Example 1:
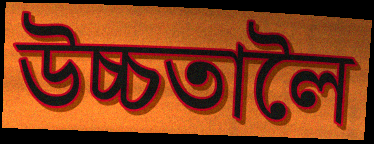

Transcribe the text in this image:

উচ্চতালৈ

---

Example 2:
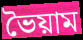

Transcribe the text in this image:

ভৈয়াম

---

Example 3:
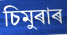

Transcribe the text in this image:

চিমুৰাৰ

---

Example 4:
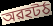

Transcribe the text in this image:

অৱহটঠ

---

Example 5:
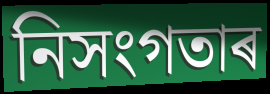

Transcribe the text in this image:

নিসংগতাৰ